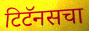
टिटॅनसचा